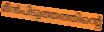
മീൻപിടുത്തത്തിന്റെ